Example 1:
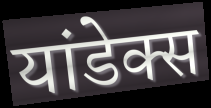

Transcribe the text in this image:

यांडेक्स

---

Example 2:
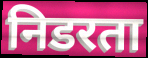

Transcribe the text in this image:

निडरता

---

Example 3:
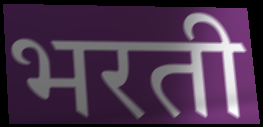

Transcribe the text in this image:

भरती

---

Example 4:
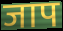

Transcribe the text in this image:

जाप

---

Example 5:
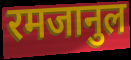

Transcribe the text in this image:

रमजानुल